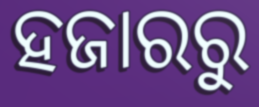
ହଜାରରୁ